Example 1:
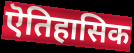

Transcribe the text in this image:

ऎतिहासिक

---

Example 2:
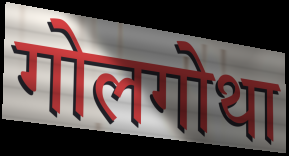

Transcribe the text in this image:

गोलगोथा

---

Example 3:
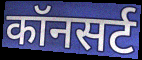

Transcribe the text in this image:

कॉनसर्ट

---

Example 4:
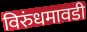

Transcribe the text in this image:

विरुंधमावडी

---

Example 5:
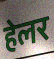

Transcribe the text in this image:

हेलर